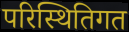
परिस्थितिगत